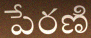
పేరణి